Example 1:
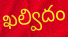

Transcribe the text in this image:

ఖల్విదం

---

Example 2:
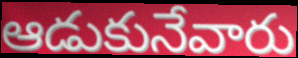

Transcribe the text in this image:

ఆడుకునేవారు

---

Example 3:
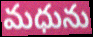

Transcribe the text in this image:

మధును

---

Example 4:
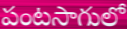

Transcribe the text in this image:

పంటసాగులో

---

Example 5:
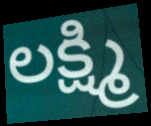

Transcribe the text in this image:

లక్ష్మి